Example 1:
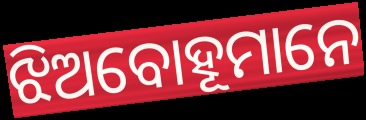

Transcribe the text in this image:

ଝିଅବୋହୂମାନେ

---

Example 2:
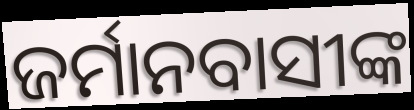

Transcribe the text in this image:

ଜର୍ମାନବାସୀଙ୍କ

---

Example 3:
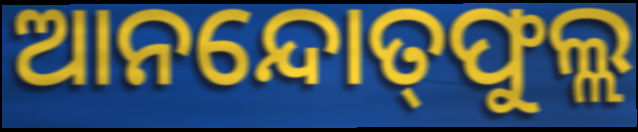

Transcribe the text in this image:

ଆନନ୍ଦୋତ୍‍ଫୁଲ୍ଲ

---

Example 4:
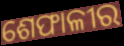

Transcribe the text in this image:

ଶେଫାଳୀର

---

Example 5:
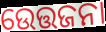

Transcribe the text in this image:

ଉେତ୍ତଜନା